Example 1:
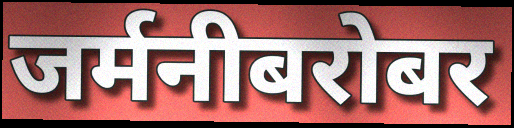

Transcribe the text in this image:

जर्मनीबरोबर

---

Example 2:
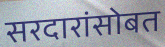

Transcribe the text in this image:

सरदारांसोबत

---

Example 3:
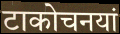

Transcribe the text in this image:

टाकोचनयां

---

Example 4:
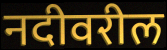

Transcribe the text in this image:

नदीवरील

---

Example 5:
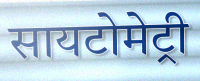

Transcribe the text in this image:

सायटोमेट्री